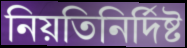
নিয়তিনির্দিষ্ট